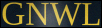
GNWL